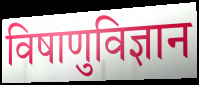
विषाणुविज्ञान